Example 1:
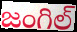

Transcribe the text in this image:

జంగిల్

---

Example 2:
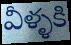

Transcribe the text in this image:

వీళ్ళకి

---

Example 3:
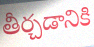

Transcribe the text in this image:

తీర్చడానికి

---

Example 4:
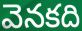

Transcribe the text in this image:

వెనకది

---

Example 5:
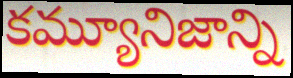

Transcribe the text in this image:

కమ్యూనిజాన్ని